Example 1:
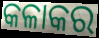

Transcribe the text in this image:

କଳାକର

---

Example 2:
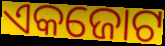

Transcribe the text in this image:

ଏକଜୋଟ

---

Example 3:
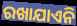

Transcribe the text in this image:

ରଖାଯାଏନି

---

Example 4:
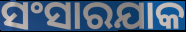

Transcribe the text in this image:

ସଂସାରଯାକ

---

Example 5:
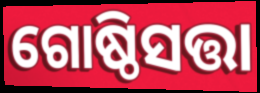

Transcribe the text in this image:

ଗୋଷ୍ଠିସତ୍ତା